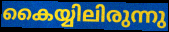
കൈയ്യിലിരുന്നു